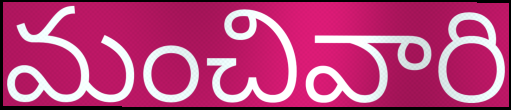
మంచివారి